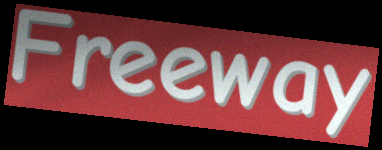
Freeway